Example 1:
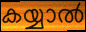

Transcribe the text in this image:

കയ്യാൽ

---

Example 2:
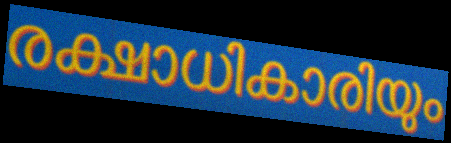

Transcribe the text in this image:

രക്ഷാധികാരിയും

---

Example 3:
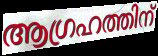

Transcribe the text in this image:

ആഗ്രഹത്തിന്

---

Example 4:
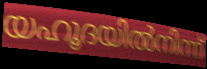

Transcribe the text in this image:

യഹൂദയിൽനിന്ന്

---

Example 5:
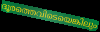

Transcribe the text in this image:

ദൂരത്തെവിടെയെങ്കിലും